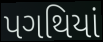
પગથિયાં